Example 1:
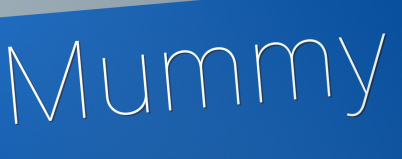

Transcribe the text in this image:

Mummy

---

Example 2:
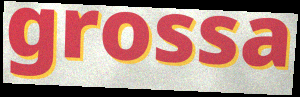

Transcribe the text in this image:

grossa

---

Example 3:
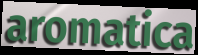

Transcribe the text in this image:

aromatica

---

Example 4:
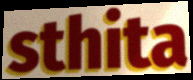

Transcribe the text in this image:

sthita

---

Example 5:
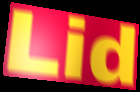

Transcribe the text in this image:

Lid